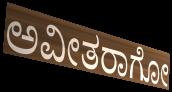
ಅವೀತರಾಗೋ